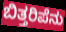
ಬಿತ್ತರಿಪೆನು